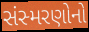
સંસ્મરણોનો